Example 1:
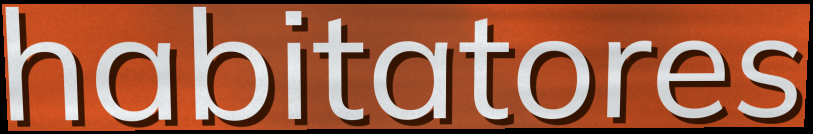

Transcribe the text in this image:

habitatores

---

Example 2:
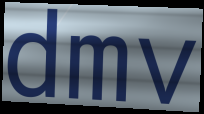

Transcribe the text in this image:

dmv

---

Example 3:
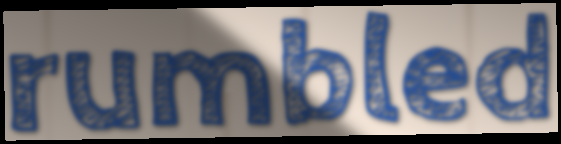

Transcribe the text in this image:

rumbled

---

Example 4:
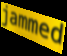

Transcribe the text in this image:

jammed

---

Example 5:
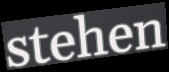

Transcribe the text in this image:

stehen